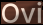
Ovi